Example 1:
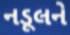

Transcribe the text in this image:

નડૂલને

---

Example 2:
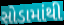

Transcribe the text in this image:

સોડામાંથી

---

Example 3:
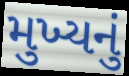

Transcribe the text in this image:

મુખ્યનું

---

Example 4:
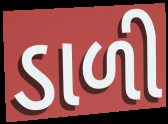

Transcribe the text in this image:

ડાળી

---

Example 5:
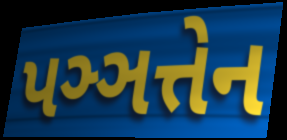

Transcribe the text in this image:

પઞ્ઞત્તેન